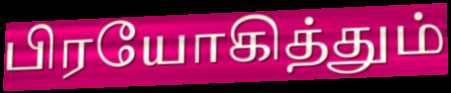
பிரயோகித்தும்